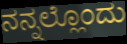
ನನ್ನಲ್ಲೊಂದು